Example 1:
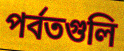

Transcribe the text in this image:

পর্বতগুলি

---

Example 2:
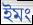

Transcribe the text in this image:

ইমং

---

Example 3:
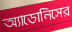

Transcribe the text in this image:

অ্যাডোনিসের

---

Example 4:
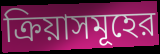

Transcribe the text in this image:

ক্রিয়াসমূহের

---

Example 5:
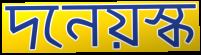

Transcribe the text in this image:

দনেয়স্ক